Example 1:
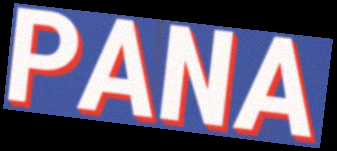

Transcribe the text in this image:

PANA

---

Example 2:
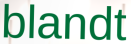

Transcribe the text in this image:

blandt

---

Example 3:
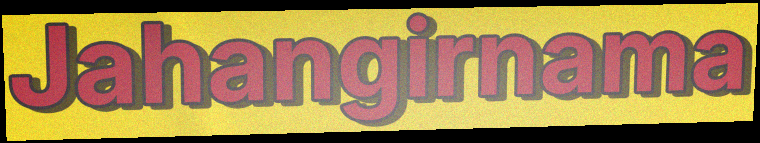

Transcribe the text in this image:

Jahangirnama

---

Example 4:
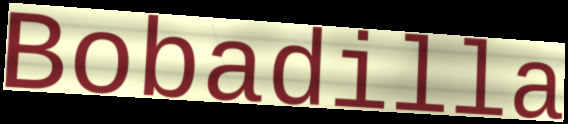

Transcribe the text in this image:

Bobadilla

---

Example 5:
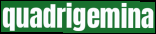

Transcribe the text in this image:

quadrigemina